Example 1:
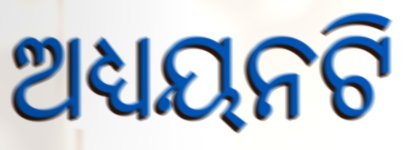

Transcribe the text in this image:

ଅଧ୍ୟୟନଟି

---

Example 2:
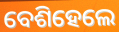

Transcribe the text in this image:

ବେଶିହେଲେ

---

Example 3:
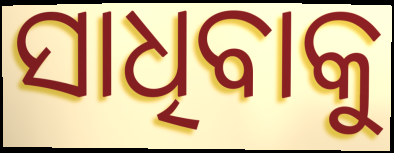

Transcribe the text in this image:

ସାଧିବାକୁ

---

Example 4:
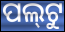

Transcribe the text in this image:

ପଲ୍‍ଟୁ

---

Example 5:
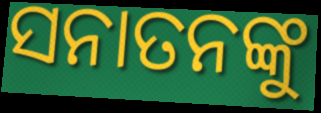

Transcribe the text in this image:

ସନାତନଙ୍କୁ